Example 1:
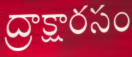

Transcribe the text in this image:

ద్రాక్షారసం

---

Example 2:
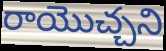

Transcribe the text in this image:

రాయొచ్చని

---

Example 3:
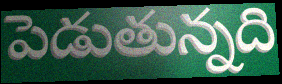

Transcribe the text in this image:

పెడుతున్నది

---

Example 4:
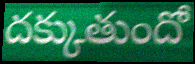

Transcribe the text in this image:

దక్కుతుందో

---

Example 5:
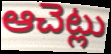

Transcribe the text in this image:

ఆచెట్లు